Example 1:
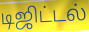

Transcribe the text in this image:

டிஜிட்டல்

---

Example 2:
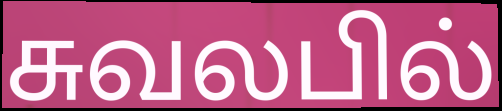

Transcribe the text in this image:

சுவலபில்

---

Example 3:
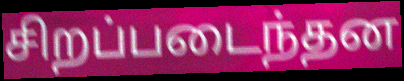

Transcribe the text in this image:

சிறப்படைந்தன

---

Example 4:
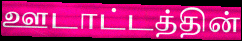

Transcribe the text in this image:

ஊடாட்டத்தின்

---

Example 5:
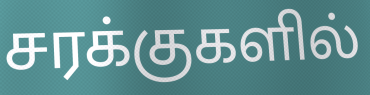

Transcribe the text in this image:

சரக்குகளில்